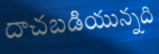
దాచబడియున్నది